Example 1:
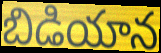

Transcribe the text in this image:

బిడియాన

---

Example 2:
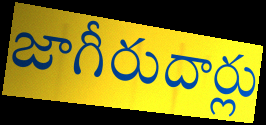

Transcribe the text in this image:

జాగీరుదార్లు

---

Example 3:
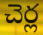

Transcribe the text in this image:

చెర్ల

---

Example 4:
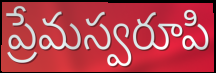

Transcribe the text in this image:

ప్రేమస్వరూపి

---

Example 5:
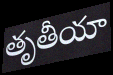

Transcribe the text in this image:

తృతీయా